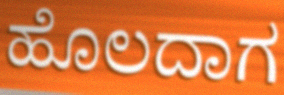
ಹೊಲದಾಗ